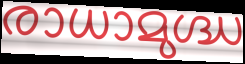
രാധാമുഗ്ദ്ധ